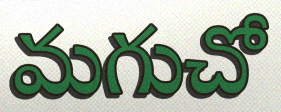
మగుచో